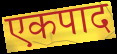
एकपाद